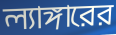
ল্যাঙ্গারের